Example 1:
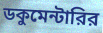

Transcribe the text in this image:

ডকুমেন্টারির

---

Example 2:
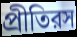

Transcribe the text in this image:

প্রীতিরস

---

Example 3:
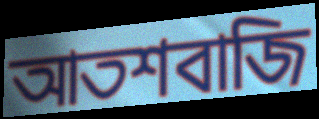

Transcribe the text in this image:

আতশবাজি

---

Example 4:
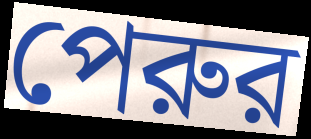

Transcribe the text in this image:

পেরুর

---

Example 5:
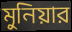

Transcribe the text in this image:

মুনিয়ার